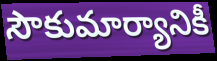
సౌకుమార్యానికీ